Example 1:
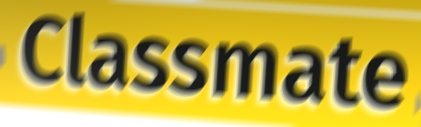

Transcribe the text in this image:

Classmate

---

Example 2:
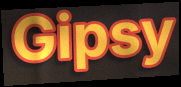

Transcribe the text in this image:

Gipsy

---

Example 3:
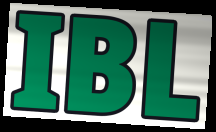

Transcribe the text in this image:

IBL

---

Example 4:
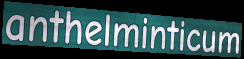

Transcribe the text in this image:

anthelminticum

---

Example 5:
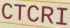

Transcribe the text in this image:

CTCRI